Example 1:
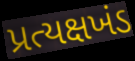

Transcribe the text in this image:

પ્રત્યક્ષખંડ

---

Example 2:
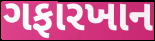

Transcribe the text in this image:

ગફારખાન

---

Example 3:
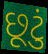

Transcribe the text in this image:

છૂટું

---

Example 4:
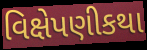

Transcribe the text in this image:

વિક્ષેપણીકથા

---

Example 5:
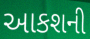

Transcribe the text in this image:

આકશની